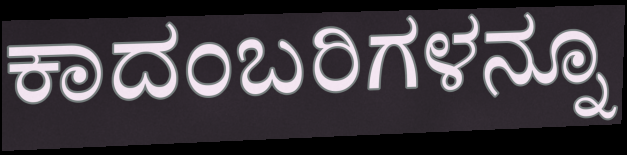
ಕಾದಂಬರಿಗಳನ್ನೂ